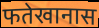
फतेखानास